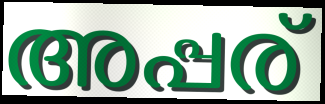
അപ്പര്